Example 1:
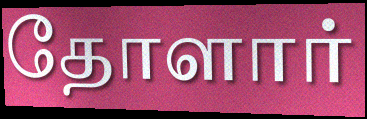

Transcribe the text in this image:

தோளார்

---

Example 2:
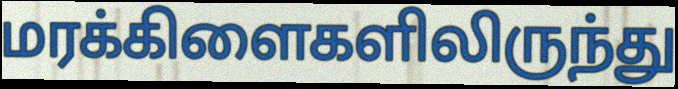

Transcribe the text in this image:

மரக்கிளைகளிலிருந்து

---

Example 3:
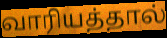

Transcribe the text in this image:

வாரியத்தால்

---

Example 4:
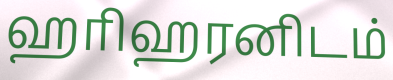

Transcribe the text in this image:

ஹரிஹரனிடம்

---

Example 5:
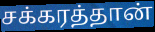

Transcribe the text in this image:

சக்கரத்தான்